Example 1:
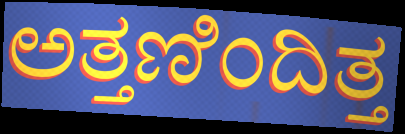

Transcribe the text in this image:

ಅತ್ತಣಿಂದಿತ್ತ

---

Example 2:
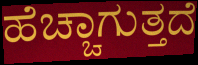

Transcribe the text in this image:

ಹೆಚ್ಚಾಗುತ್ತದೆ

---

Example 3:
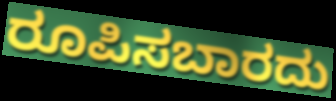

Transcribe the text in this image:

ರೂಪಿಸಬಾರದು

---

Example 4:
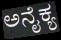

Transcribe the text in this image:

ಅನೈಕ್ಯ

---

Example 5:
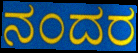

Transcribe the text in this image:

ನಂದರ